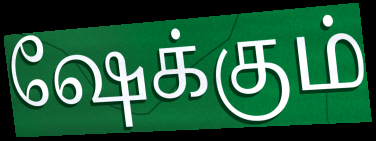
ஷேக்கும்